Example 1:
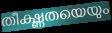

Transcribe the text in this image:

തീക്ഷ്ണതയെയും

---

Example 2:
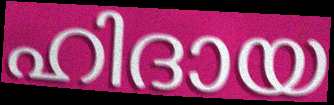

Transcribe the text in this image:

ഹിദായ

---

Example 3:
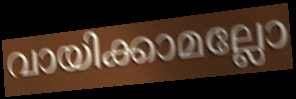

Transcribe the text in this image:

വായിക്കാമല്ലോ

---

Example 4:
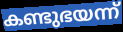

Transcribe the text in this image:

കണ്ടുഭയന്ന്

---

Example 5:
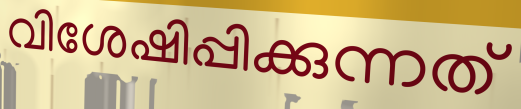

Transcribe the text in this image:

വിശേഷിപ്പിക്കുന്നത്